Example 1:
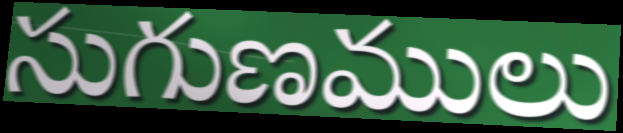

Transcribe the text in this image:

సుగుణములు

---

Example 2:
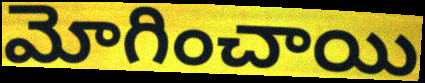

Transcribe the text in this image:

మోగించాయి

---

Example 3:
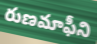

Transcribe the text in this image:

రుణమాఫీని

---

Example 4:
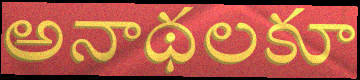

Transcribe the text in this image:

అనాథలకూ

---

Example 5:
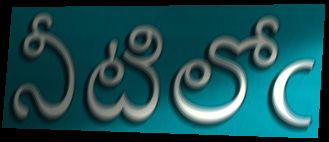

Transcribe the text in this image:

నీటిలోఁ